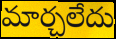
మార్చలేదు